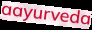
aayurveda